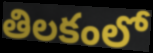
తిలకంలో